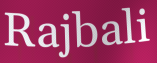
Rajbali